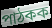
পাঠকক